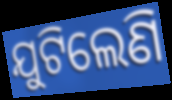
ଯୁଟିଲେଣି